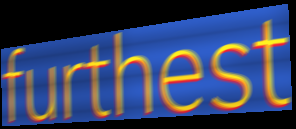
furthest